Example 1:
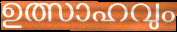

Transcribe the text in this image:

ഉത്സാഹവും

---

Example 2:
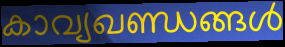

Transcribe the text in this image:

കാവ്യഖണ്ഡങ്ങൾ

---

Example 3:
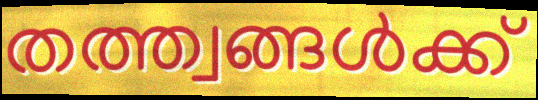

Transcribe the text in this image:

തത്ത്വങ്ങൾക്ക്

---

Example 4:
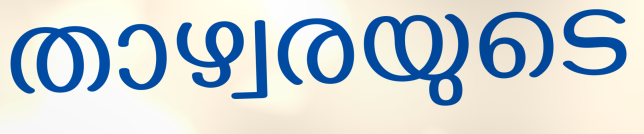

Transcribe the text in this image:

താഴ്വരയുടെ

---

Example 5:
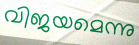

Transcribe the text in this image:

വിജയമെന്നു